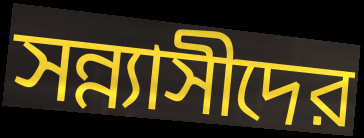
সন্ন্যাসীদের